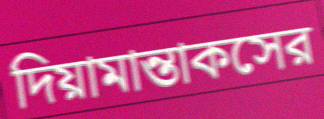
দিয়ামান্তাকসের